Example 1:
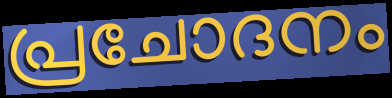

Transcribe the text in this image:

പ്രചോദനം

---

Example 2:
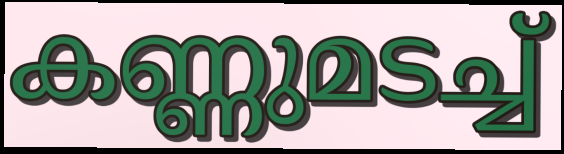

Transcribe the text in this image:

കണ്ണുമടച്ച്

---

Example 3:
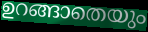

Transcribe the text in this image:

ഉറങ്ങാതെയും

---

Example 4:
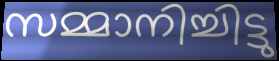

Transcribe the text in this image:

സമ്മാനിച്ചിട്ടു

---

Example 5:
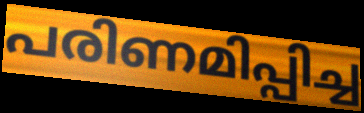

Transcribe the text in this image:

പരിണമിപ്പിച്ച